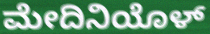
ಮೇದಿನಿಯೊಳ್